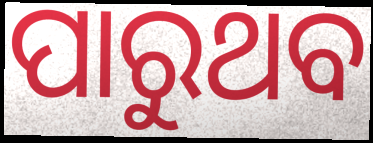
ପାରୁଥବ